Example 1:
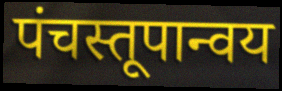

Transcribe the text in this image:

पंचस्तूपान्वय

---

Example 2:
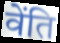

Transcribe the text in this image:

वेंति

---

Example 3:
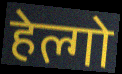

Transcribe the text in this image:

हेल्गो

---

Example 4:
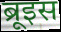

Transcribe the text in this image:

ब्रूइस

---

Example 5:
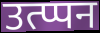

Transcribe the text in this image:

उत्प्पन